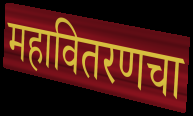
महावितरणचा